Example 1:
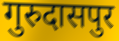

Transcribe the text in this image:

गुरुदासपुर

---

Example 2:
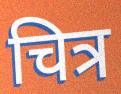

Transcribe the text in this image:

चित्र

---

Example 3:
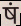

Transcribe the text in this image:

षं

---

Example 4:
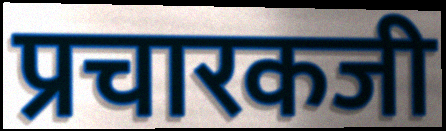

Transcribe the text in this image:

प्रचारकजी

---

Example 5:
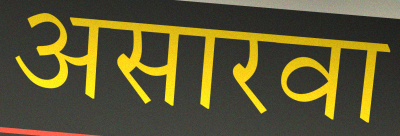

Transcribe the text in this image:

असारवा